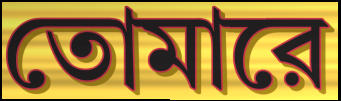
তোমারে